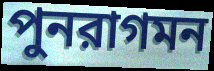
পুনরাগমন